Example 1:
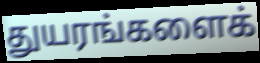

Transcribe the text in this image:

துயரங்களைக்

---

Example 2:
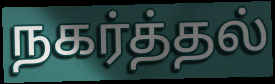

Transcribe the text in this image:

நகர்த்தல்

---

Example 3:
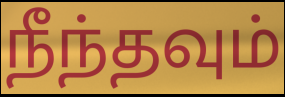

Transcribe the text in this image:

நீந்தவும்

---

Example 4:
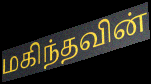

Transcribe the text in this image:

மகிந்தவின்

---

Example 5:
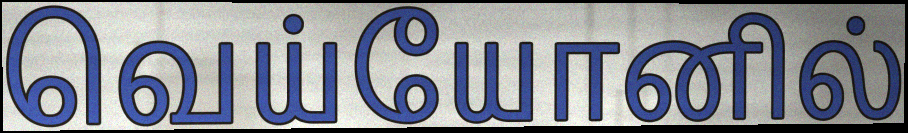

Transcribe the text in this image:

வெய்யோனில்